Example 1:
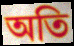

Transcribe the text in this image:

অতি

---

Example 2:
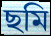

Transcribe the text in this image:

ছমি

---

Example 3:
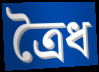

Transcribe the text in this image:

ত্রৈধ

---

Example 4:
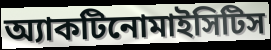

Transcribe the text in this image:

অ্যাকটিনোমাইসিটিস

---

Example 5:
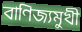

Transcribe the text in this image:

বাণিজ্যমুখী